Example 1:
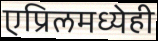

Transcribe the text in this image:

एप्रिलमध्येही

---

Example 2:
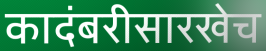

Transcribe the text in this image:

कादंबरीसारखेच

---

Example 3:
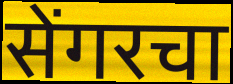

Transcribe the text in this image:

सेंगरचा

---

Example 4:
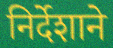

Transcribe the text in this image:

निर्देशाने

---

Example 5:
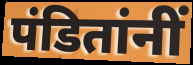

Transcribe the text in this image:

पंडितांनीं